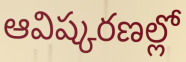
ఆవిష్కరణల్లో